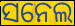
ସନେଲ